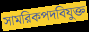
সামরিকপদবিযুক্ত